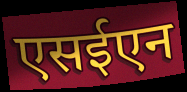
एसईएन